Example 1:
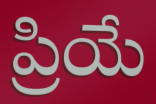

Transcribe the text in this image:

ప్రియే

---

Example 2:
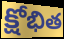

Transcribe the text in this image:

క్షోభిత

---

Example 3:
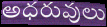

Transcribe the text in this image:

అధరువులు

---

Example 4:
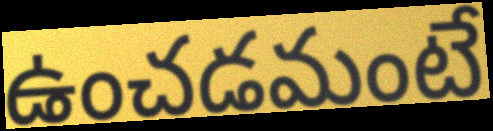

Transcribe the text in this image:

ఉంచడమంటే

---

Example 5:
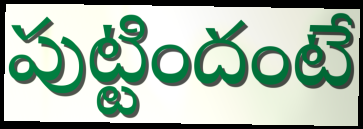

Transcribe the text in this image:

పుట్టిందంటే